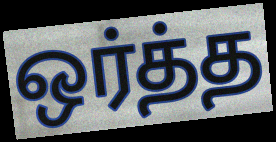
ஒர்த்த